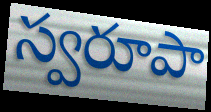
స్వరూపా